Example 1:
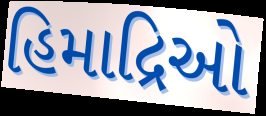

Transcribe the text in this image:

હિમાદ્રિઓ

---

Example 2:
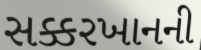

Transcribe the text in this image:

સક્કરખાનની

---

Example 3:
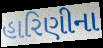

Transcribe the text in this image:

હારિણીના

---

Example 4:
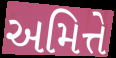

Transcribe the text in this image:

અમિત્તે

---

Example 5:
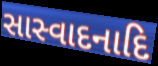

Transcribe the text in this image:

સાસ્વાદનાદિ